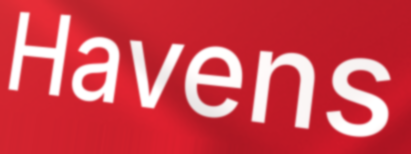
Havens